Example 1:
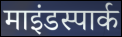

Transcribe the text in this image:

माइंडस्पार्क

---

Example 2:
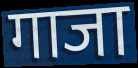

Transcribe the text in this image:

गाजा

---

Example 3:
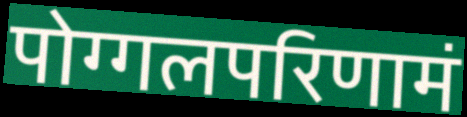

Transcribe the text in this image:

पोग्गलपरिणामं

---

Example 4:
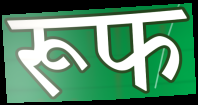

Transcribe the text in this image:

रूफ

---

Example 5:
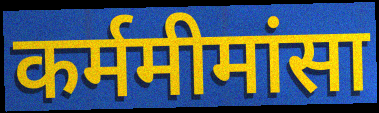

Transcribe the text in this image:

कर्ममीमांसा